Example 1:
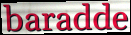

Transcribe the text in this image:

baradde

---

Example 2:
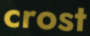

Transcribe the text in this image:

crost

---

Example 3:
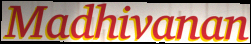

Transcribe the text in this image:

Madhivanan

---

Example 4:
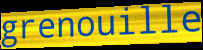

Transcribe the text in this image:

grenouille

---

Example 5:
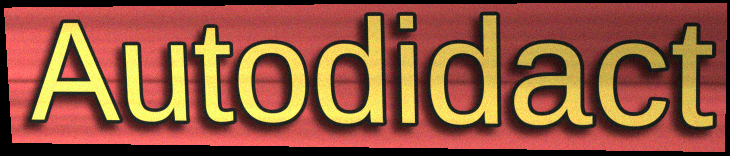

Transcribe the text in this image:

Autodidact